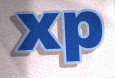
xp